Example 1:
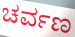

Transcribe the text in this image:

ಚರ್ವಣ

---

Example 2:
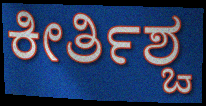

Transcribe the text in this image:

ಕೀರ್ತಿಶ್ಚ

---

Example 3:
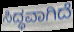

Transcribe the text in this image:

ಸಿದ್ಧವಾಗಿದೆ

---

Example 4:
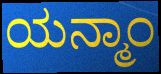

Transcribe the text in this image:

ಯನ್ಮಾಂ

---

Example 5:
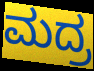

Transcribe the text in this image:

ಮದ್ರ